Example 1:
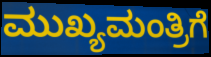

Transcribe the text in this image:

ಮುಖ್ಯಮಂತ್ರಿಗೆ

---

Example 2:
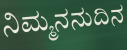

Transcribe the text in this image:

ನಿಮ್ಮನನುದಿನ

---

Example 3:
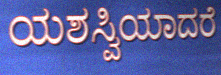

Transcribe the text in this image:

ಯಶಸ್ವಿಯಾದರೆ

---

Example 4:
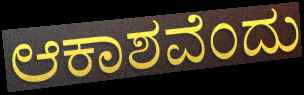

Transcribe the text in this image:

ಆಕಾಶವೆಂದು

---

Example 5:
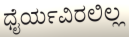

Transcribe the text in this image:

ಧೈರ್ಯವಿರಲಿಲ್ಲ